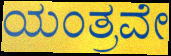
ಯಂತ್ರವೇ